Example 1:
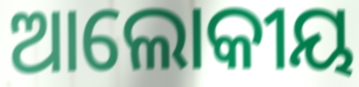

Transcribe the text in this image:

ଆଲୋକୀୟ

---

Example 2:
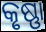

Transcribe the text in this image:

କୃଷ୍ଣା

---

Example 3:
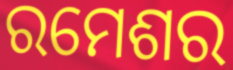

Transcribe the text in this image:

ରମେଶର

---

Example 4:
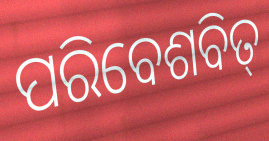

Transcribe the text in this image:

ପରିବେଶବିତ୍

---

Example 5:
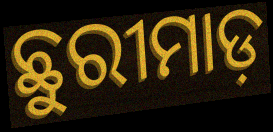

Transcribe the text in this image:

ଛୁରୀମାଡ଼